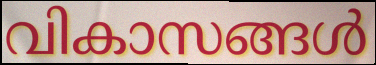
വികാസങ്ങൾ